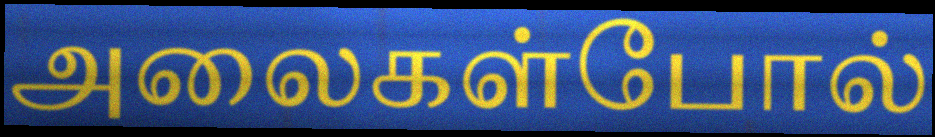
அலைகள்போல்